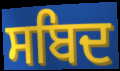
ਸਬਿਦ